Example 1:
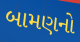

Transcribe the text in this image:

બામણનો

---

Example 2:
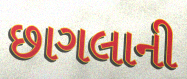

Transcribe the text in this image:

છાગલાની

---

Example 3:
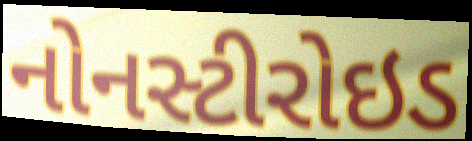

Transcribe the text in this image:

નોનસ્ટીરોઇડ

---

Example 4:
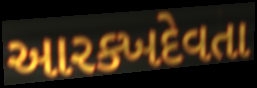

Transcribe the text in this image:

આરક્ખદેવતા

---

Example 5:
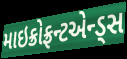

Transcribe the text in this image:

માઇક્રોફ્રન્ટએન્ડ્સ